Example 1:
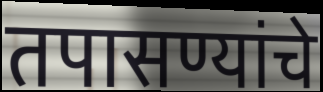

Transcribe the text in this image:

तपासण्यांचे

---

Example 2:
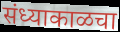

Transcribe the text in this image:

संध्याकाळचा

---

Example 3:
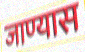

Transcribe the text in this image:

जाण्यास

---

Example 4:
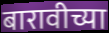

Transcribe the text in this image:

बारावीच्या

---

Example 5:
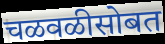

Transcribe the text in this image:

चळवळीसोबत